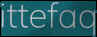
ittefaq